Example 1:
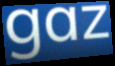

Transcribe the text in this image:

gaz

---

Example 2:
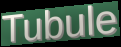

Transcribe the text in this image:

Tubule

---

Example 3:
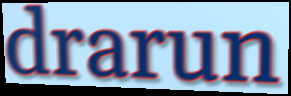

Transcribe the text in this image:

drarun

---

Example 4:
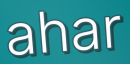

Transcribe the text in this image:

ahar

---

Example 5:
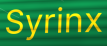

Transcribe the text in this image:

Syrinx